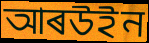
আৰউইন